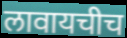
लावायचीच